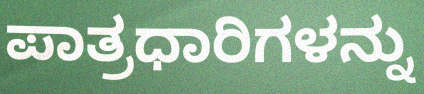
ಪಾತ್ರಧಾರಿಗಳನ್ನು